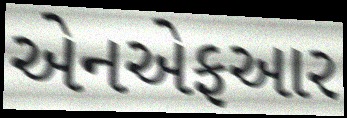
એનએફઆર